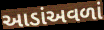
આડાંઅવળાં